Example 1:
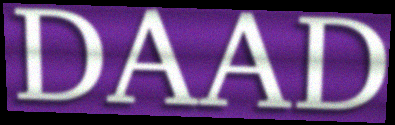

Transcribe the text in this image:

DAAD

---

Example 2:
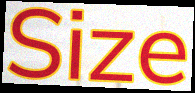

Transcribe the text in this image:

Size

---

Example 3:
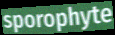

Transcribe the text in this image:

sporophyte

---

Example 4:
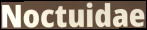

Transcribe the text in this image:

Noctuidae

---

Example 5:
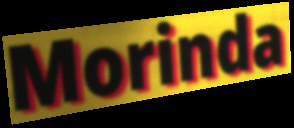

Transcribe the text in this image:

Morinda